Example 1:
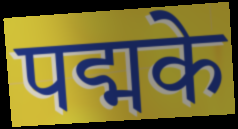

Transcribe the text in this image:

पद्मके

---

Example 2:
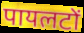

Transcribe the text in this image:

पायलटों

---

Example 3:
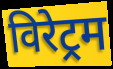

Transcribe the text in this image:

विरेट्रम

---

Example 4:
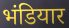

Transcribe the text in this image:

भंडियार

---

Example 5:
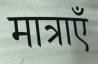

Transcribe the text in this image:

मात्राएँ